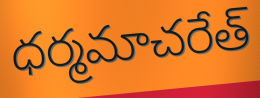
ధర్మమాచరేత్